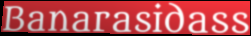
Banarasidass